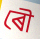
ৰৌ